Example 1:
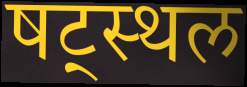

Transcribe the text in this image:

षट्स्थल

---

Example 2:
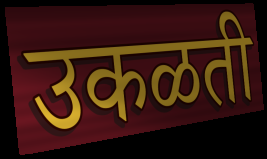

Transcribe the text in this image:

उकळती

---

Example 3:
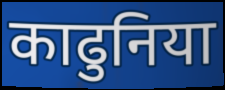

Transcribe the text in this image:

काढुनिया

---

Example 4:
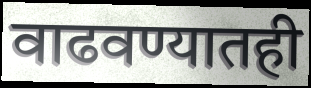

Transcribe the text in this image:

वाढवण्यातही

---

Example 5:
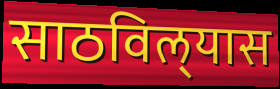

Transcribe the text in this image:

साठविल्यास